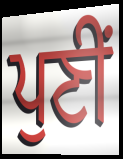
ਪੁਣੀਂ